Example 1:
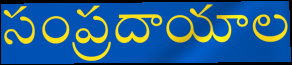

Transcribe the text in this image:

సంప్రదాయాల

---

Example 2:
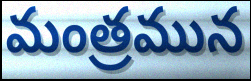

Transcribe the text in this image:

మంత్రమున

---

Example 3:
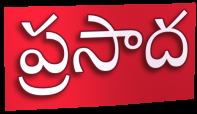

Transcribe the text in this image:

ప్రసాద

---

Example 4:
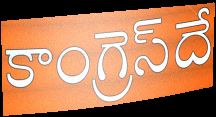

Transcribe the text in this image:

కాంగ్రెస్‌దే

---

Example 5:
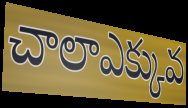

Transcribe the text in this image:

చాలాఎక్కువ